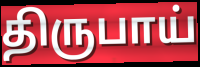
திருபாய்